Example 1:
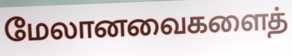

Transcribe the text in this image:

மேலானவைகளைத்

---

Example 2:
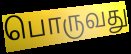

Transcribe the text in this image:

பொருவது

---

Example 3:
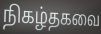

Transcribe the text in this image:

நிகழ்தகவை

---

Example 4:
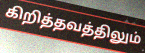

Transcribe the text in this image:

கிறித்தவத்திலும்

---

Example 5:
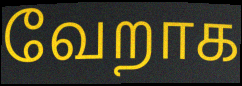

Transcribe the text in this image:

வேறாக